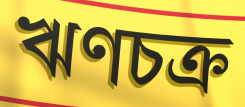
ঋণচক্র